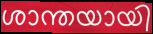
ശാന്തയായി